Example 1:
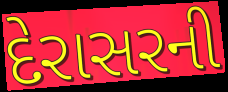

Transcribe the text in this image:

દેરાસરની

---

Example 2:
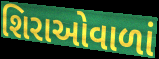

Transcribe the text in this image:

શિરાઓવાળાં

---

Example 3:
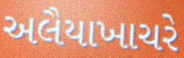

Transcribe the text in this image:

અલૈયાખાચરે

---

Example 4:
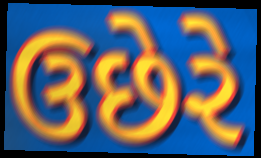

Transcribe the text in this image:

ઉછેરે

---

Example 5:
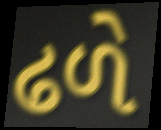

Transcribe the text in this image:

ઢળે